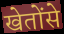
खेतोंसे